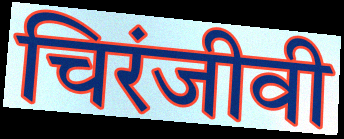
चिरंजीवी